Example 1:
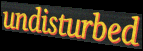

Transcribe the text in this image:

undisturbed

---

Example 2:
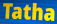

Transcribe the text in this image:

Tatha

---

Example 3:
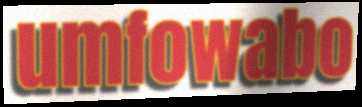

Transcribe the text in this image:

umfowabo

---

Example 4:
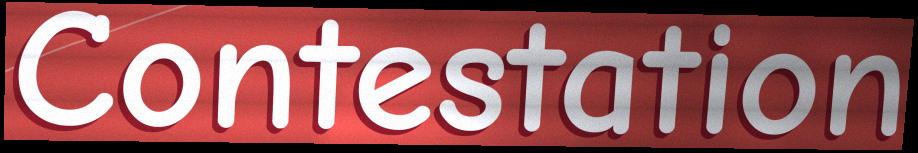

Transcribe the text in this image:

Contestation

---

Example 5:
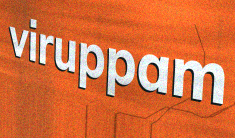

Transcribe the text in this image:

viruppam